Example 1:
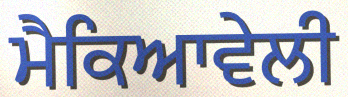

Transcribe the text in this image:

ਮੈਕਿਆਵੇਲੀ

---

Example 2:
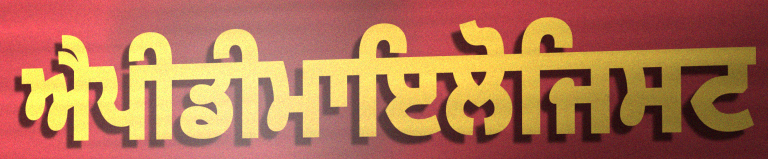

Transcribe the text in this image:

ਐਪੀਡੀਮਾਇਲੋਜਿਸਟ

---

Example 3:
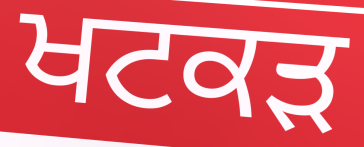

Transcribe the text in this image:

ਖਟਕੜ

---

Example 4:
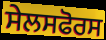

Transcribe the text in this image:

ਸੇਲਸਫੋਰਸ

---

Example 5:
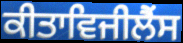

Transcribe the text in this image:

ਕੀਤਾਵਿਜੀਲੈਂਸ